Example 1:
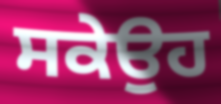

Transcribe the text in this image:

ਸਕੇਉਹ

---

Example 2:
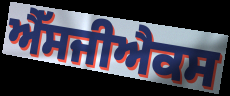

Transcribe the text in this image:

ਐੱਸਜੀਐਕਸ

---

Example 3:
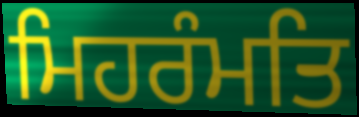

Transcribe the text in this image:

ਮਿਹਰੰਮਤਿ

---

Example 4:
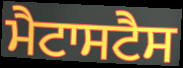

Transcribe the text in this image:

ਮੈਟਾਸਟੈਸ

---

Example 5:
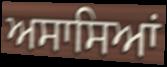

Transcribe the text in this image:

ਅਸਾਸਿਆਂ